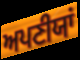
ਅਪਣੀਯਾਂ